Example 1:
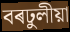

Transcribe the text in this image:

বৰঢুলীয়া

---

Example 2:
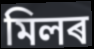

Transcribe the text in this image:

মিলৰ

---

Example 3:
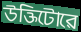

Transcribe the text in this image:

উক্তিটোৱে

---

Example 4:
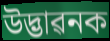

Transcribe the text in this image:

উদ্ভাৱনক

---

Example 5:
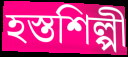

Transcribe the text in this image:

হস্তশিল্পী